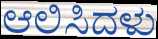
ಆಲಿಸಿದಳು